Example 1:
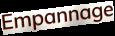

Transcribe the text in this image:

Empannage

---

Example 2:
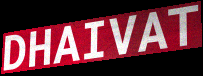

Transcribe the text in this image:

DHAIVAT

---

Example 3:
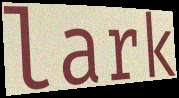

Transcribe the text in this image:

lark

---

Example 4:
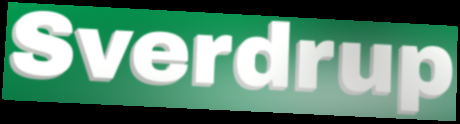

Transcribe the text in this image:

Sverdrup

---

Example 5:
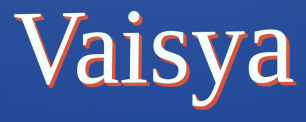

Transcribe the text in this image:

Vaisya